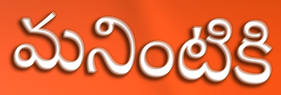
మనింటికి